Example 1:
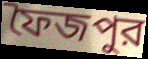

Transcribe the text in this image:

ফৈজপুর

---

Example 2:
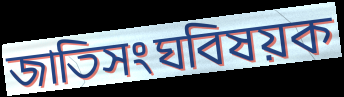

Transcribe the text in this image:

জাতিসংঘবিষয়ক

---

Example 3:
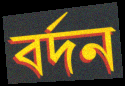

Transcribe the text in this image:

বর্দন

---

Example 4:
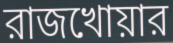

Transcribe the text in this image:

রাজখোয়ার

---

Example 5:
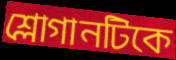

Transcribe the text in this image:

শ্লোগানটিকে